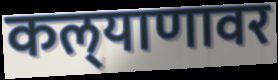
कल्याणावर